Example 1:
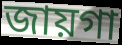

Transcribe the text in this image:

জায়গা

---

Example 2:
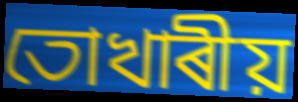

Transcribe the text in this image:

তোখাৰীয়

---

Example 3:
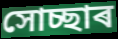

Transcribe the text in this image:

সোচ্ছাৰ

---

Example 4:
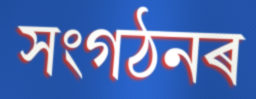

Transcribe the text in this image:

সংগঠনৰ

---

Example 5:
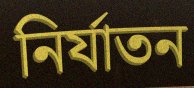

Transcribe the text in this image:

নিৰ্যাতন